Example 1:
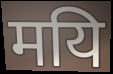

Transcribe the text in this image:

मयि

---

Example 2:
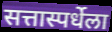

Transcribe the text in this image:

सत्तास्पर्धेला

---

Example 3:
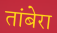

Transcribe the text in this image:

तांबेरा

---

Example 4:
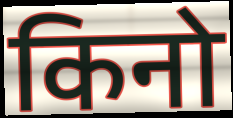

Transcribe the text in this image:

किनो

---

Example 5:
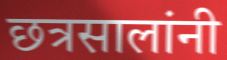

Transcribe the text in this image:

छत्रसालांनी